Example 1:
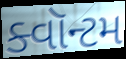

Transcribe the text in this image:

ક્વૉન્ટમ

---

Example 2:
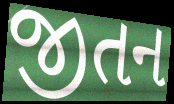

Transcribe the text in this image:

જીતન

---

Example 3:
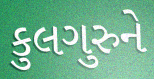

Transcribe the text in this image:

કુલગુરુને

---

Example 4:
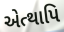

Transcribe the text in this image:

એત્થાપિ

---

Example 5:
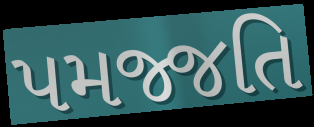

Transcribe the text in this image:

પમજ્જતિ